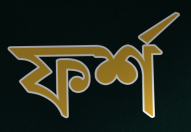
ফর্শ